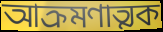
আক্ৰমণাত্মক